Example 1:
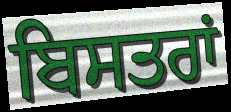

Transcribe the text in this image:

ਬਿਸਤਰਾਂ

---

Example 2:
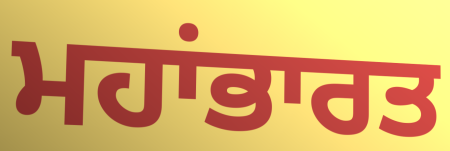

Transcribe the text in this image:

ਮਹਾਂਭਾਰਤ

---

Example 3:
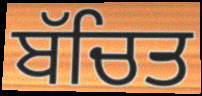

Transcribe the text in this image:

ਬੱਚਿਤ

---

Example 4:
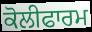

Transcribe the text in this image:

ਕੋਲੀਫਾਰਮ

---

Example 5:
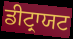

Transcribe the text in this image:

ਡੀਟ੍ਰਾਯਟ